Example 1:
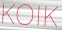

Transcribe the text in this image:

KOIK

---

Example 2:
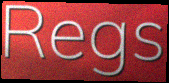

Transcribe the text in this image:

Regs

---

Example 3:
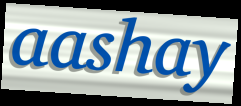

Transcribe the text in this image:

aashay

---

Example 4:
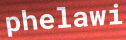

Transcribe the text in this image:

phelawi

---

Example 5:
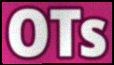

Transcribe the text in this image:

OTs